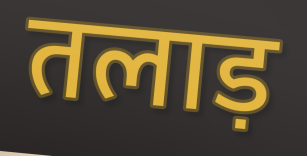
तलाड़